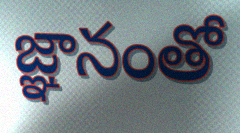
జ్ఞానంతో